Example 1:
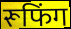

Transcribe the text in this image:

रूफिंग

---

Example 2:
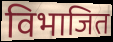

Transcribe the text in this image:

विभाजित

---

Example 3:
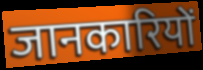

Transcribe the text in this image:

जानकारियों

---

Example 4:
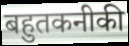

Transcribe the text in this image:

बहुतकनीकी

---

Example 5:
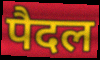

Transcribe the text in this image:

पैदल